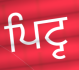
ਪਿਟ੍ਟ